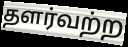
தளர்வற்ற